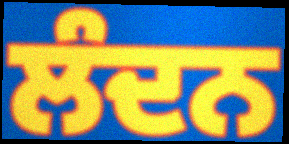
ਲੰਦਨ